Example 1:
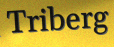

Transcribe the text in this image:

Triberg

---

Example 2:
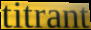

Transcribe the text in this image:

titrant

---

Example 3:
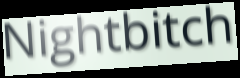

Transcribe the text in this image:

Nightbitch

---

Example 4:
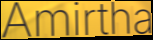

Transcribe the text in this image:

Amirtha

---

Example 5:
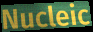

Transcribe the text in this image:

Nucleic